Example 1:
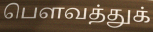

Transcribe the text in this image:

பௌவத்துக்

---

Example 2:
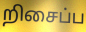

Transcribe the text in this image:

றிசைப்ப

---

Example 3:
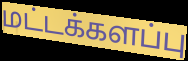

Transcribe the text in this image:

மட்டக்களப்பு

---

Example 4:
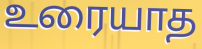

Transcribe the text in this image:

உரையாத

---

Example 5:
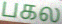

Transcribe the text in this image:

பகல